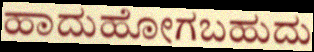
ಹಾದುಹೋಗಬಹುದು